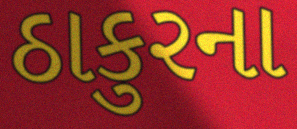
ઠાકુરના